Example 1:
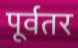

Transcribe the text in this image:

पूर्वतर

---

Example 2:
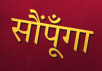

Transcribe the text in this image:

सौंपूँगा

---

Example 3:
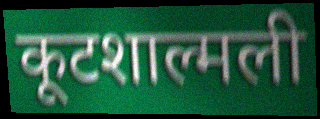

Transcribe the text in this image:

कूटशाल्मली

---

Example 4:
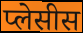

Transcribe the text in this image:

प्लेसीस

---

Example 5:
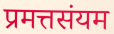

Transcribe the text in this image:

प्रमत्तसंयम